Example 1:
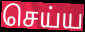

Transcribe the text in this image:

செய்ய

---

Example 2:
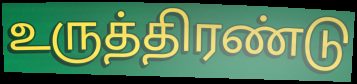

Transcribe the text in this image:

உருத்திரண்டு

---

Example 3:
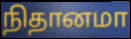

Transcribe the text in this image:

நிதானமா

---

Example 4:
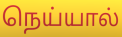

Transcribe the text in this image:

நெய்யால்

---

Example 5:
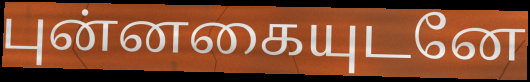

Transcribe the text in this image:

புன்னகையுடனே